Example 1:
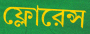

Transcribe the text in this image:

ফ্লোরেন্স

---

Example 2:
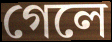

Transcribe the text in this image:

গেলে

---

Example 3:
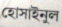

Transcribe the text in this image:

হোসাইনুল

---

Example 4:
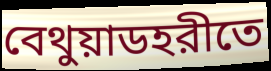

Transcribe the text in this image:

বেথুয়াডহরীতে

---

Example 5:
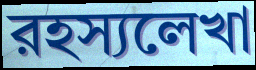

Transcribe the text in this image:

রহস্যলেখা